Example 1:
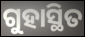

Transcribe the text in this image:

ଗୁହାସ୍ଥିତ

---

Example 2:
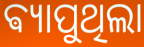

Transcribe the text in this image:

ଵ୍ୟାପୁଥିଲା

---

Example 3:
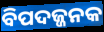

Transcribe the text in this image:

ବିପଦଜ୍ଜନକ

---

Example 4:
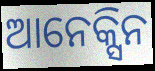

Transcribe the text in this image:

ଆନେକ୍ସିନ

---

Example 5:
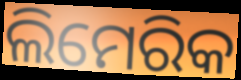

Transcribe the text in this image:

ଲିମେରିକ